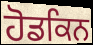
ਹੋਡਕਿਨ